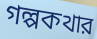
গল্পকথার